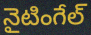
నైటింగేల్